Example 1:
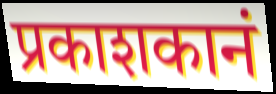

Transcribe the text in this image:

प्रकाशकानं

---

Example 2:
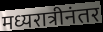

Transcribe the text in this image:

मध्यरात्रीनंतर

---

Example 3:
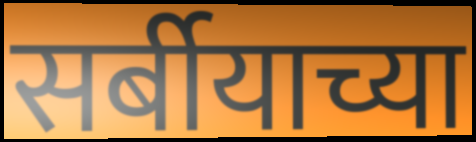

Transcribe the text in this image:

सर्बीयाच्या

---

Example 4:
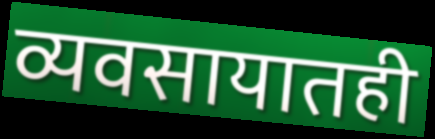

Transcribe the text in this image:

व्यवसायातही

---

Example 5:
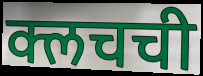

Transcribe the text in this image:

क्लचची